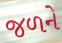
જળને